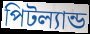
পিটল্যান্ড